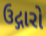
ઉદ્ગારો